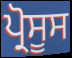
ਪ੍ਰੋਸੂਸ